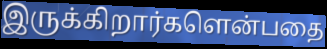
இருக்கிறார்களென்பதை